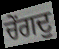
ਚੇਂਗਦੁ